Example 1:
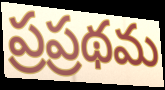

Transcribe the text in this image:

ప్రప్రథమ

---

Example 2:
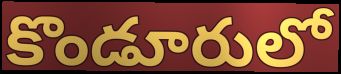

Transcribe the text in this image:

కొండూరులో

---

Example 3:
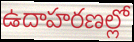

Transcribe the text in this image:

ఉదాహరణల్లో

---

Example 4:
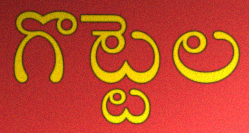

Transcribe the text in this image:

గొట్టెల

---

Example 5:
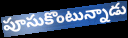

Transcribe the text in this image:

పూసుకొంటున్నాడు